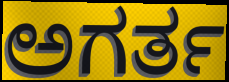
ಅಗರ್ತ